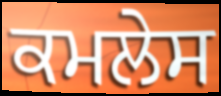
ਕਮਲੇਸ